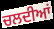
ਚਲਦੀਆਂ